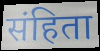
संहिता